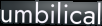
umbilical